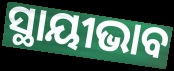
ସ୍ଥାୟୀଭାବ